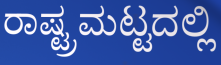
ರಾಷ್ಟ್ರಮಟ್ಟದಲ್ಲಿ